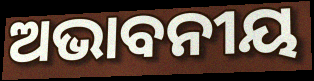
ଅଭାବନୀୟ